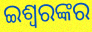
ଇଶ୍ୱରଙ୍କର